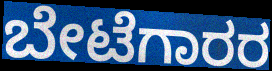
ಬೇಟೆಗಾರರ